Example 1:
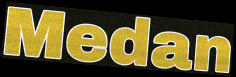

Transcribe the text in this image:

Medan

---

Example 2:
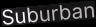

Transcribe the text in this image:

Suburban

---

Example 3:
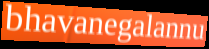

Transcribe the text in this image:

bhavanegalannu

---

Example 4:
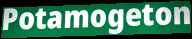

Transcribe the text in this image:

Potamogeton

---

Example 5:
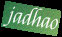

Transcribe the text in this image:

jadhao